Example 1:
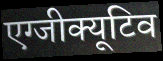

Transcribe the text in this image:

एग्जीक्यूटिव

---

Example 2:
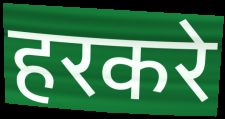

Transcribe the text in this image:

हरकरे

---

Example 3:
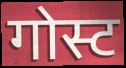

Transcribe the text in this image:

गोस्ट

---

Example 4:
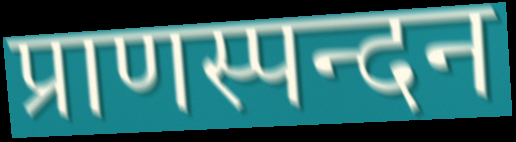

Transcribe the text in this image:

प्राणस्पन्दन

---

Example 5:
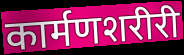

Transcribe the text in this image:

कार्मणशरीरी